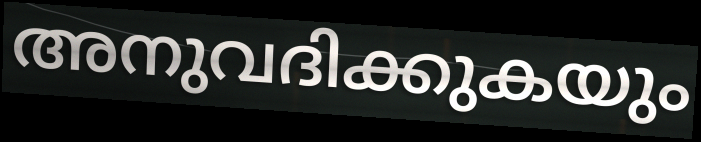
അനുവദിക്കുകയും